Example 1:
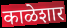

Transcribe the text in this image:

काळेशार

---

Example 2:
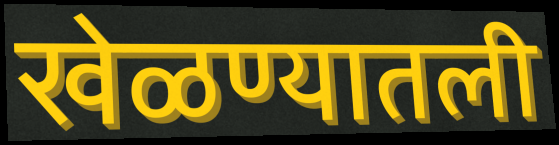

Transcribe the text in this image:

खेळण्यातली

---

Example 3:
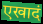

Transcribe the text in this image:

एखादं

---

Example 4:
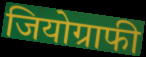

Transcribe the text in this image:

जियोग्राफी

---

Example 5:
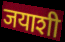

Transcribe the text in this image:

जयाशी